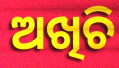
ଅଖିଚି